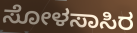
ಸೋಳಸಾಸಿರ